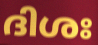
ദിശഃ